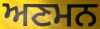
ਅਣਮਨ